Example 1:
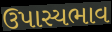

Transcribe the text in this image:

ઉપાસ્યભાવ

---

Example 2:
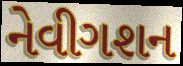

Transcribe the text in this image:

નેવીગશન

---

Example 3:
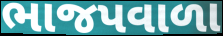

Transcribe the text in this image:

ભાજપવાળા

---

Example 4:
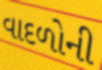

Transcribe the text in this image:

વાદળોની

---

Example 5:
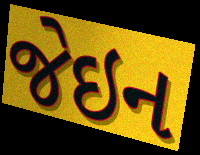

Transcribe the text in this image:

જેઇન